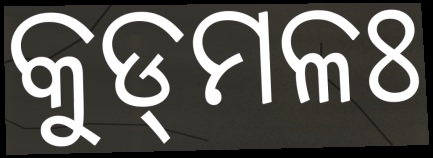
କୁଡ୍‌ମଳଃ